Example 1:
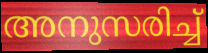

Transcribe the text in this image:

അനുസരിച്ച്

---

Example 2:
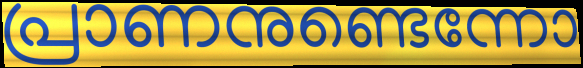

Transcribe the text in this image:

പ്രാണനുണ്ടെന്നോ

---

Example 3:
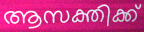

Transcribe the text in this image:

ആസക്തിക്ക്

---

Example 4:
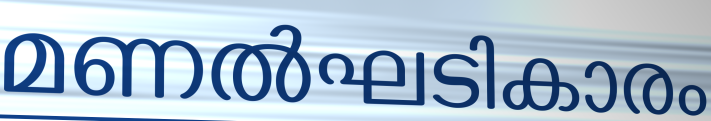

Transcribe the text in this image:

മണൽഘടികാരം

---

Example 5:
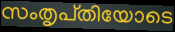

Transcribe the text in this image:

സംതൃപ്‌തിയോടെ